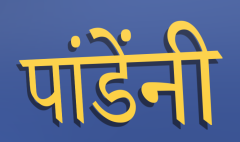
पांडेंनी